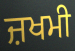
ਜ਼ਖਮੀ